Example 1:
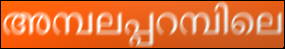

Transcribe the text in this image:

അമ്പലപ്പറമ്പിലെ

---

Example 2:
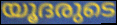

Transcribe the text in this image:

യൂദരുടെ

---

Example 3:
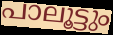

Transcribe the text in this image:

പാലൂട്ടും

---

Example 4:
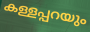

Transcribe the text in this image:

കള്ളപ്പറയും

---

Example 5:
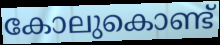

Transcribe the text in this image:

കോലുകൊണ്ട്